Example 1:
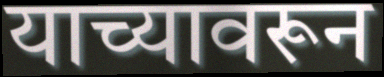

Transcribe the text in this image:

याच्यावरून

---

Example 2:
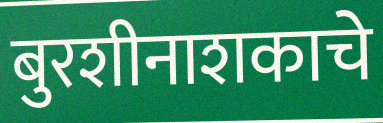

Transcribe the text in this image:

बुरशीनाशकाचे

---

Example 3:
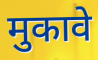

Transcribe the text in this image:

मुकावे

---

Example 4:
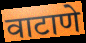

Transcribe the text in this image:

वाटाणे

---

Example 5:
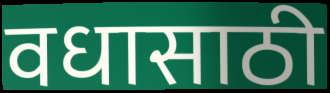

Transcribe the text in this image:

वधासाठी